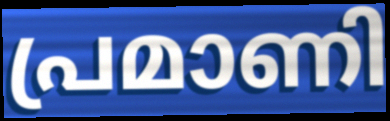
പ്രമാണി